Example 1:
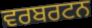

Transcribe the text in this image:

ਵਰਬਰਟਨ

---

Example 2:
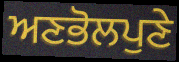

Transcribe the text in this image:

ਅਣਭੋਲਪੁਣੇ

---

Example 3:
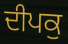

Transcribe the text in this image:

ਦੀਪਕੁ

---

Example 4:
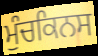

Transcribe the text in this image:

ਮੁੰਚਕਿਨਸ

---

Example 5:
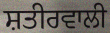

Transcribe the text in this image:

ਸ਼ਤੀਰਵਾਲੀ